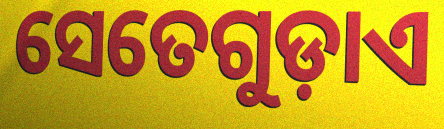
ସେତେଗୁଡ଼ାଏ